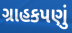
ગ્રાહકપણું